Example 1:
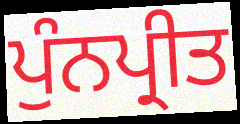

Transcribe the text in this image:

ਪੁੰਨਪ੍ਰੀਤ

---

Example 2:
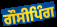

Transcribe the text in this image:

ਗੌਸੀਪਿੰਗ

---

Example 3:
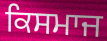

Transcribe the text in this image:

ਕਿਸਮਾਜ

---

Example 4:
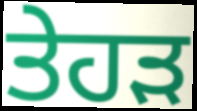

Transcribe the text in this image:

ਤੇਹੜ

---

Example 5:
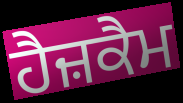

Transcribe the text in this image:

ਹੈਜ਼ਕੈਮ